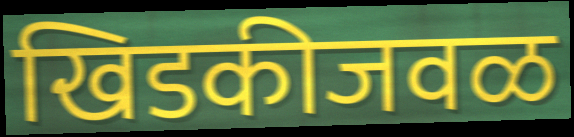
खिडकीजवळ